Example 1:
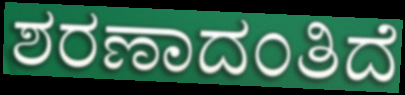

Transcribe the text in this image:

ಶರಣಾದಂತಿದೆ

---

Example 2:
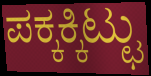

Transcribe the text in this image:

ಪಕ್ಕಕ್ಕಿಟ್ಟು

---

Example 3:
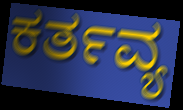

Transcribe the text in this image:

ಕರ್ತವ್ಯ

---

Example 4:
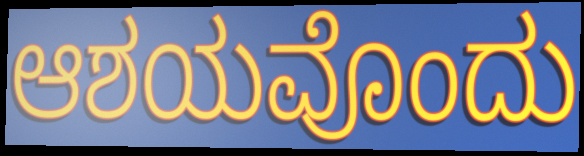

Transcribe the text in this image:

ಆಶಯವೊಂದು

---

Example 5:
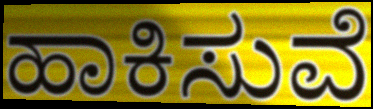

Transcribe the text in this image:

ಹಾಕಿಸುವೆ